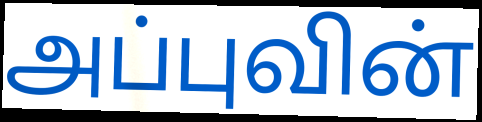
அப்புவின்